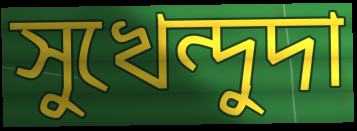
সুখেন্দুদা